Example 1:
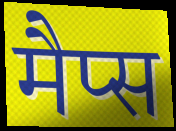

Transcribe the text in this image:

मैप्स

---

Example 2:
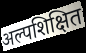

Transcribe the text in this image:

अल्पशिक्षित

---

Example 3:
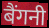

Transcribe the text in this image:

बैंगनी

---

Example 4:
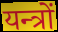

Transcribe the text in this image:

यन्त्रों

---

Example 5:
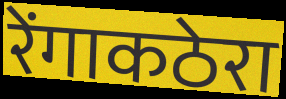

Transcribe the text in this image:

रेंगाकठेरा